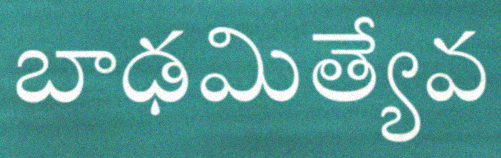
బాఢమిత్యేవ